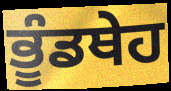
ਭੂੰਡਥੇਹ